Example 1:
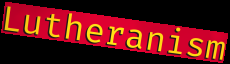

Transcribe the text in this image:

Lutheranism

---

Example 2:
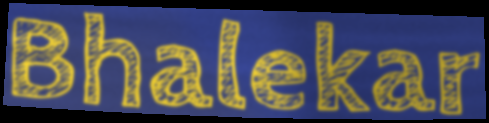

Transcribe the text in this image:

Bhalekar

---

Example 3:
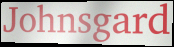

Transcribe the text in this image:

Johnsgard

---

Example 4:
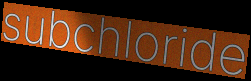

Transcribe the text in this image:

subchloride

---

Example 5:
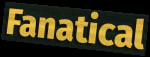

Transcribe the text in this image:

Fanatical